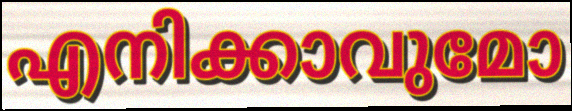
എനിക്കാവുമോ